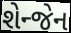
શેન્જેન